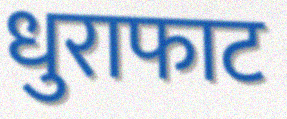
धुराफाट